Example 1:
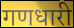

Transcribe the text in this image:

गणधारी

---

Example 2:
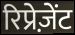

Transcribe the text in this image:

रिप्रेज़ेंट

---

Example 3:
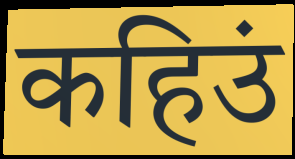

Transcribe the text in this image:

कहिउं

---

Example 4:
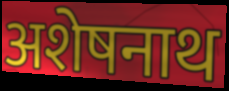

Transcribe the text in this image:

अशेषनाथ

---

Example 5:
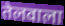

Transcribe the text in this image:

तेलवाला